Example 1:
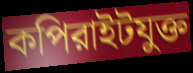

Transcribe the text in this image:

কপিরাইটযুক্ত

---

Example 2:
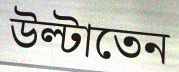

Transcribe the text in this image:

উল্টাতেন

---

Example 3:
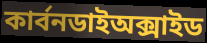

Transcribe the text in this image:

কার্বনডাইঅক্সাইড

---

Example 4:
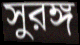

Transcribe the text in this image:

সুরঙ্গ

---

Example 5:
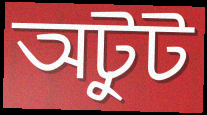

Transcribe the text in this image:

অটুট